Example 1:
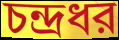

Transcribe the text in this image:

চন্দ্রধর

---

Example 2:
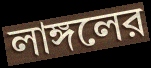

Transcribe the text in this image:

লাঙ্গলের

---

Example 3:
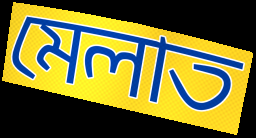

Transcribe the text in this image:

মেলাত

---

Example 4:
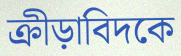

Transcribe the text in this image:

ক্রীড়াবিদকে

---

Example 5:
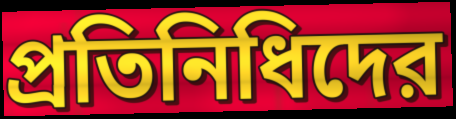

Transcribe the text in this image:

প্রতিনিধিদের